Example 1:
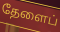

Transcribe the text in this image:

தேளைப்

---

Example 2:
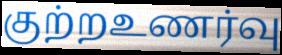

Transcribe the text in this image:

குற்றஉணர்வு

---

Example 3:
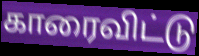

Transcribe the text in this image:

காரைவிட்டு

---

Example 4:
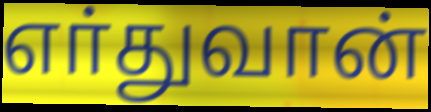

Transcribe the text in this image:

எர்துவான்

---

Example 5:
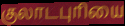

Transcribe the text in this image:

குலாடபுரியை